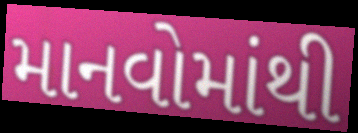
માનવોમાંથી